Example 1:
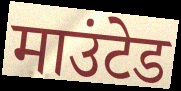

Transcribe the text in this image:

माउंटेड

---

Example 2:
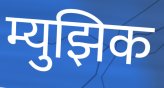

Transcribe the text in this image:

म्युझिक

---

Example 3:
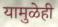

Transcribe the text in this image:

यामुळेही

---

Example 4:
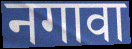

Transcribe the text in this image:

नगावा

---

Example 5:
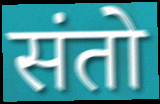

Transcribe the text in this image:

संतो